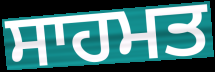
ਸਾਹਮਤ